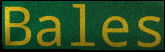
Bales